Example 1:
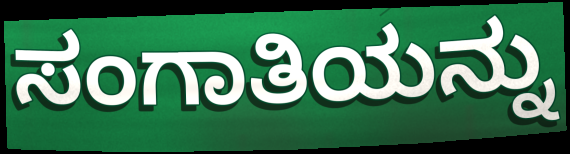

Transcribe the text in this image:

ಸಂಗಾತಿಯನ್ನು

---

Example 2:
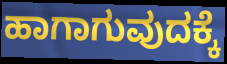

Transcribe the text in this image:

ಹಾಗಾಗುವುದಕ್ಕೆ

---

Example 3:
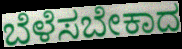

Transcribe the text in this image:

ಬೆಳೆಸಬೇಕಾದ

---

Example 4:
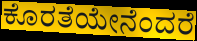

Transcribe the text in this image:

ಕೊರತೆಯೇನೆಂದರೆ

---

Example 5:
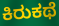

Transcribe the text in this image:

ಕಿರುಕಥೆ